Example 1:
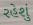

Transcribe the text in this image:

રહેશું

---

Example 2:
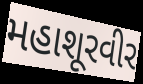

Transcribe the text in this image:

મહાશૂરવીર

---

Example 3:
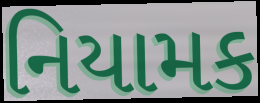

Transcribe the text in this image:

નિયામક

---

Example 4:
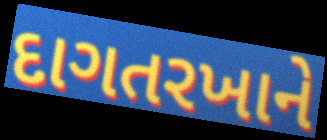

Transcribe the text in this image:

દાગતરખાને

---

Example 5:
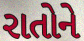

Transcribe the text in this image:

રાતોને